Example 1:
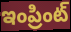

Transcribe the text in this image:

ఇంప్రింట్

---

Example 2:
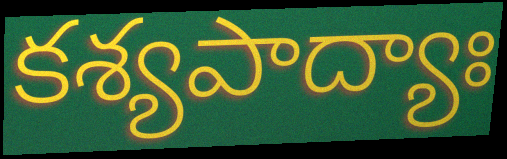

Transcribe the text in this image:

కశ్యపాద్యాః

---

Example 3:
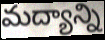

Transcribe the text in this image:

మద్యాన్ని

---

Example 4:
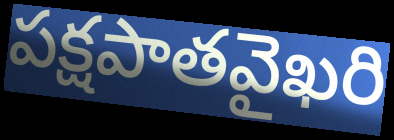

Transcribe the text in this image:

పక్షపాతవైఖరి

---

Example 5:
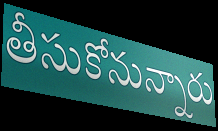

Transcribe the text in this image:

తీసుకోనున్నారు